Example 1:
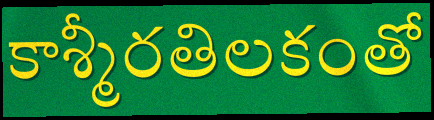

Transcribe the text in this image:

కాశ్మీరతిలకంతో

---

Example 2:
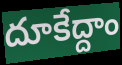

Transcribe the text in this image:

దూకేద్దాం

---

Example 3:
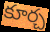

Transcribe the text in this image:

కూర్చ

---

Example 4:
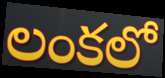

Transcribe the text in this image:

లంకలో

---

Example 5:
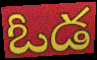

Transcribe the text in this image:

ఓడ